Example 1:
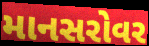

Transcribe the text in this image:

માનસરોવર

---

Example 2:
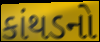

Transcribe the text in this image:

કાંથડનો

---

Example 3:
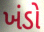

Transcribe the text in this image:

ખંડો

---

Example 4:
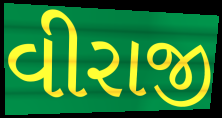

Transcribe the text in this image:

વીરાજી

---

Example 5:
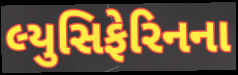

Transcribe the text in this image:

લ્યુસિફેરિનના